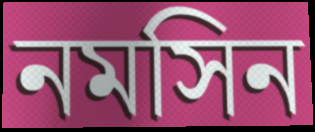
নমসিন